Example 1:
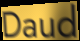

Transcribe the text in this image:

Daud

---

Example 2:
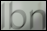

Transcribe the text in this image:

Ibn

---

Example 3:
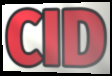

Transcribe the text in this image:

CID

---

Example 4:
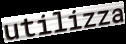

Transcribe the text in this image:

utilizza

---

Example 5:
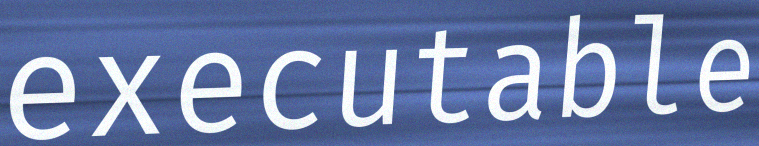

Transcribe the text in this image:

executable